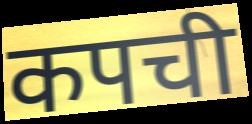
कपची